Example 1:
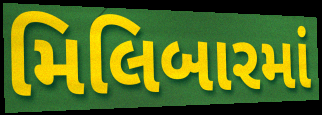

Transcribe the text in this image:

મિલિબારમાં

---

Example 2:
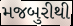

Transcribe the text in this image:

મજબુરીથી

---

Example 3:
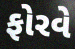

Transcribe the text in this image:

ફોરવે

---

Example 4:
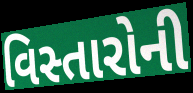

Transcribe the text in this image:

વિસ્તારોની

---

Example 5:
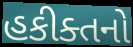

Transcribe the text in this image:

હકીક્તનો